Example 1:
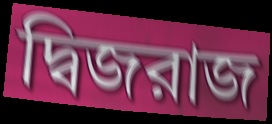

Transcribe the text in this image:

দ্বিজরাজ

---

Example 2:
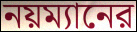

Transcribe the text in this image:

নয়ম্যানের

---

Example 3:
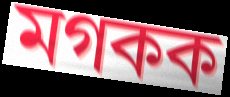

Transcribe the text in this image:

মগকক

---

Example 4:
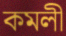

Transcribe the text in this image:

কমলী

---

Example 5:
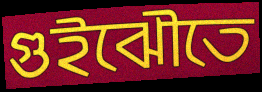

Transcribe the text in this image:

গুইঝৌতে